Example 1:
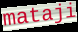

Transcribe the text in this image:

mataji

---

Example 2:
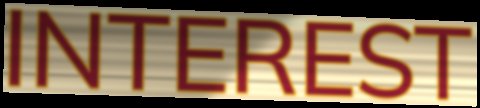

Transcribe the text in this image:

INTEREST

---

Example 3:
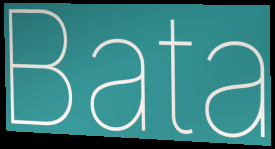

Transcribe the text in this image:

Bata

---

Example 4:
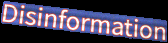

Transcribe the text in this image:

Disinformation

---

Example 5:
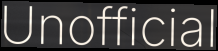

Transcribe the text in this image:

Unofficial